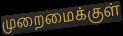
முறைமைக்குள்